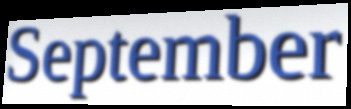
September